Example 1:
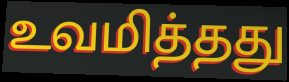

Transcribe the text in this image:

உவமித்தது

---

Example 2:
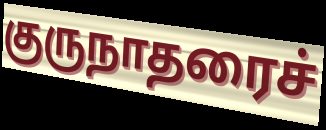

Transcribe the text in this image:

குருநாதரைச்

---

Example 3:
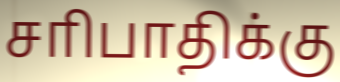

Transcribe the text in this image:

சரிபாதிக்கு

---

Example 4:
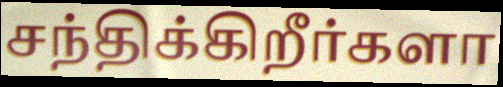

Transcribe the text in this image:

சந்திக்கிறீர்களா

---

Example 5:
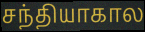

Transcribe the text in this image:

சந்தியாகால